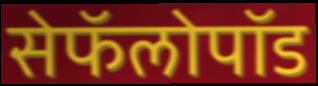
सेफॅलोपॉड